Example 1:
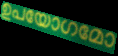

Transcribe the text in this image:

ഉപയോഗമോ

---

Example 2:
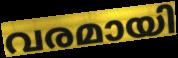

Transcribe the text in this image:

വരമായി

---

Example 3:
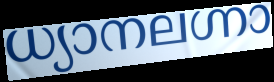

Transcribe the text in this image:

ധ്യാനലഗ്നാ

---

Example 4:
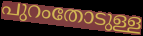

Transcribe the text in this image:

പുറംതോടുള്ള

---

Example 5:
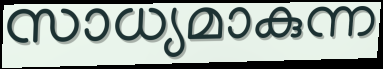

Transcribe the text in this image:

സാധ്യമാകുന്ന